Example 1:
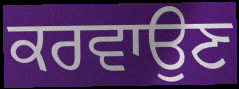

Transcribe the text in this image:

ਕਰਵਾਉਣ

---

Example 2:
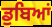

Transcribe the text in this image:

ਡੁਬਿਆਂ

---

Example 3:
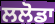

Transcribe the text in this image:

ਲਲੋਡਾ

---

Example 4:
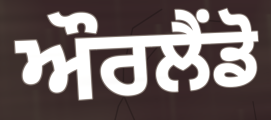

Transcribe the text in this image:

ਔਰਲੈਂਡੋ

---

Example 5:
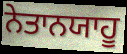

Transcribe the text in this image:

ਨੇਤਾਨਯਾਹੂ